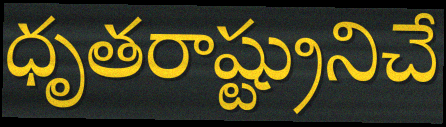
ధృతరాష్ట్రునిచే